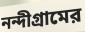
নন্দীগ্রামের